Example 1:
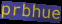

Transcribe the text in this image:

prbhue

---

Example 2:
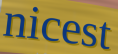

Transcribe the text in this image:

nicest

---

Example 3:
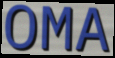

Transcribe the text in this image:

OMA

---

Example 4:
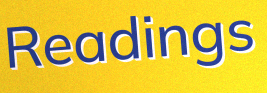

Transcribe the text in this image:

Readings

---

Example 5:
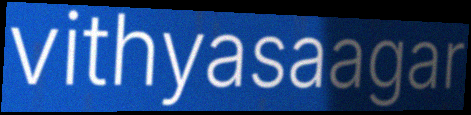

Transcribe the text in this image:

vithyasaagar